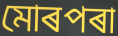
মোৰপৰা